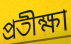
প্রতীক্ষা